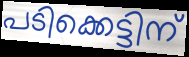
പടിക്കെട്ടിന്